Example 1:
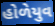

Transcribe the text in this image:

હોળેયુવ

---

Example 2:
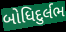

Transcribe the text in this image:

બોધિદુર્લભ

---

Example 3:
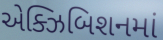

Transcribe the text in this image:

એક્ઝિબિશનમાં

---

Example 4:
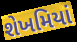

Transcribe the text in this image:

શેખમિયાં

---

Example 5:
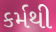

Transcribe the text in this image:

કર્મથી